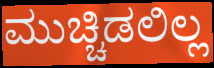
ಮುಚ್ಚಿಡಲಿಲ್ಲ